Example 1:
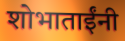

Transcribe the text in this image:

शोभाताईंनी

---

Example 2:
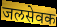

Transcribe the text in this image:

जलसेवक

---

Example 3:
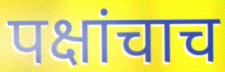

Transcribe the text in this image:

पक्षांचाच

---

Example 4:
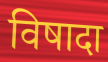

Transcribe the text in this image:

विषादा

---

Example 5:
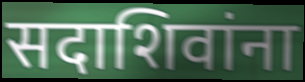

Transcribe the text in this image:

सदाशिवांना